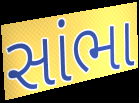
સાંભા